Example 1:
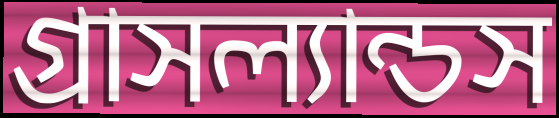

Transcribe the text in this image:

গ্রাসল্যান্ডস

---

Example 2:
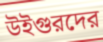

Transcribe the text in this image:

উইগুরদের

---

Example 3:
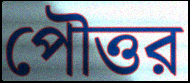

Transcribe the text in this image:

পৌত্তর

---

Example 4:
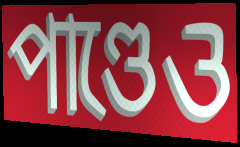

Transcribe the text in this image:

পাণ্ডেও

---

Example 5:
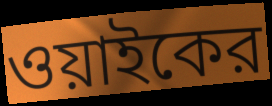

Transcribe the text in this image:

ওয়াইকের